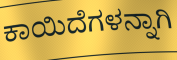
ಕಾಯಿದೆಗಳನ್ನಾಗಿ